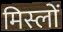
मिस्लों